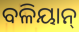
ବଳିୟାନ୍